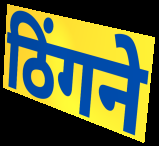
ठिंगने